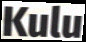
Kulu